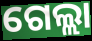
ଗେଲ୍ଲା